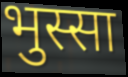
भुस्सा